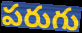
పరుగు